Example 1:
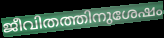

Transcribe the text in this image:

ജീവിതത്തിനുശേഷം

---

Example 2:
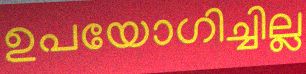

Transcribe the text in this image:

ഉപയോഗിച്ചില്ല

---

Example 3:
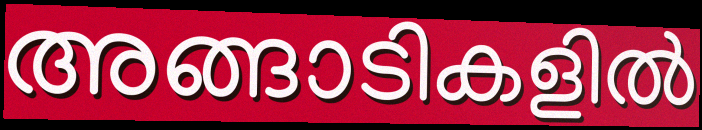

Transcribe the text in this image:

അങ്ങാടികളിൽ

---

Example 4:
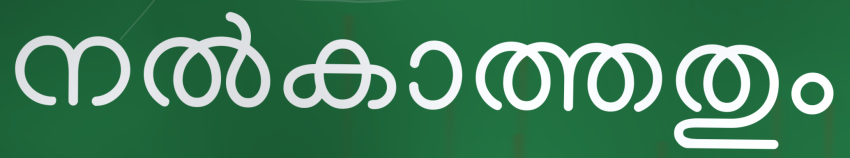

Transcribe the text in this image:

നൽകാത്തതും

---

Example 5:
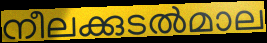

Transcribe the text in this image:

നീലക്കുടൽമാല